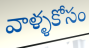
వాళ్ళకోసం